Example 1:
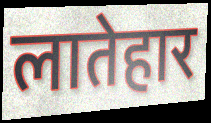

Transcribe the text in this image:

लातेहार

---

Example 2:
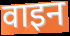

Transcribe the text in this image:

वाइन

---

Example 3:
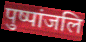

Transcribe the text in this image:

पुष्‍पांजलि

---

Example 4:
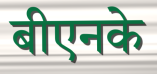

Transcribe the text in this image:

बीएनके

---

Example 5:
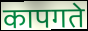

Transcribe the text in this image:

कापगते